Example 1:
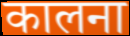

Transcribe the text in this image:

कालना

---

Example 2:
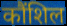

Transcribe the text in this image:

कौंशिल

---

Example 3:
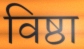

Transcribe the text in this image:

विष्ठा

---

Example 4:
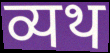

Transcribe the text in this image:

व्यथ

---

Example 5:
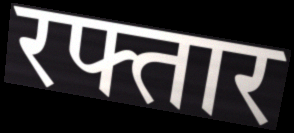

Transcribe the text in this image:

रफ्‍तार